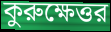
কুরুক্ষেত্তর